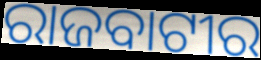
ରାଜବାଟୀର